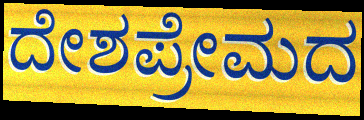
ದೇಶಪ್ರೇಮದ